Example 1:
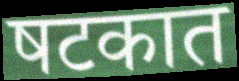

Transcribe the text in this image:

षटकात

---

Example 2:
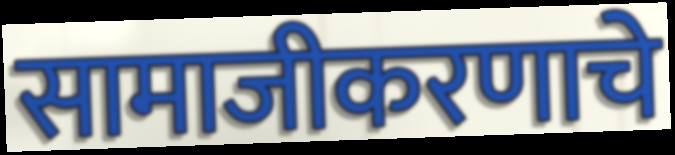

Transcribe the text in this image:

सामाजीकरणाचे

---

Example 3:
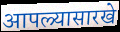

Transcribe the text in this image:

आपल्यासारखे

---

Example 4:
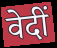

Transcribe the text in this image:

वेदीं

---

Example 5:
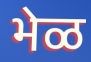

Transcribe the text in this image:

भेळ